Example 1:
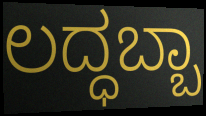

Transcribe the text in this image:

ಲದ್ಧಬ್ಬಾ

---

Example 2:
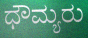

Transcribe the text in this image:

ಧೌಮ್ಯರು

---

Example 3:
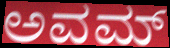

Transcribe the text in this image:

ಅವಮ್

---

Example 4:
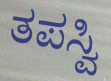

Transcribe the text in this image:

ತಪಸ್ವಿ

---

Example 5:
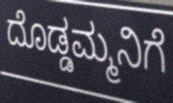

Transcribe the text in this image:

ದೊಡ್ಡಮ್ಮನಿಗೆ